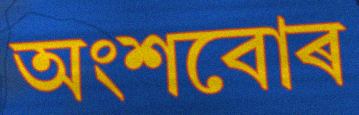
অংশবোৰ